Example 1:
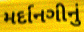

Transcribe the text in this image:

મર્દાનગીનું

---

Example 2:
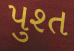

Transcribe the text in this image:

પુશ્ત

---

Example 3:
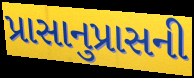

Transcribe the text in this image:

પ્રાસાનુપ્રાસની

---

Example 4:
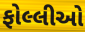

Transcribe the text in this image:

ફોલ્લીઓ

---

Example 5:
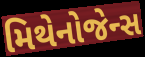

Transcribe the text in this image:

મિથેનોજેન્સ